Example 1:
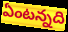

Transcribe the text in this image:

ఏంటన్నది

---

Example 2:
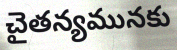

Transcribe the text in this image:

చైతన్యమునకు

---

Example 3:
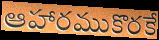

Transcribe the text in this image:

ఆహారముకొరకే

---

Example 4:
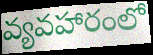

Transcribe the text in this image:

వ్యవహారంలో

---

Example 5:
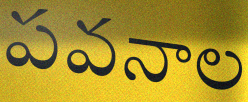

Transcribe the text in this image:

పవనాల